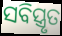
ସବିସ୍ତ୍ରୃତ